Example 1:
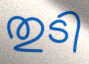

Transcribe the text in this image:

തുടി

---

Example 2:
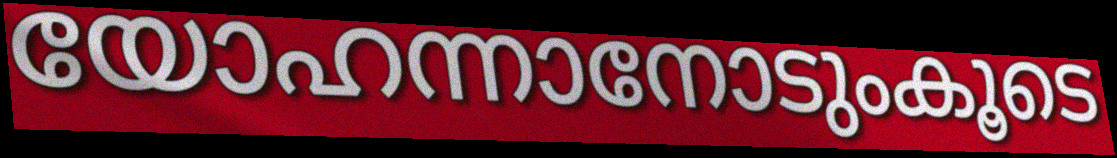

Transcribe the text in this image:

യോഹന്നാനോടുംകൂടെ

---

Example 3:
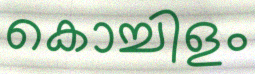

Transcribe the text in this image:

കൊച്ചിളം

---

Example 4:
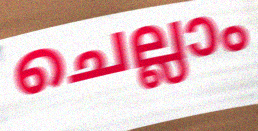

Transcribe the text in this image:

ചെല്ലാം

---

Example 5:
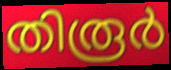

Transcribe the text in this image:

തിരൂർ